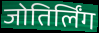
जोतिर्लिंग